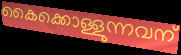
കൈക്കൊള്ളുന്നവന്